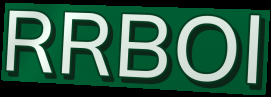
RRBOl